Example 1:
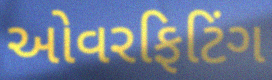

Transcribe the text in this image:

ઓવરફિટિંગ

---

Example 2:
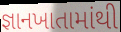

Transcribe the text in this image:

જ્ઞાનખાતામાંથી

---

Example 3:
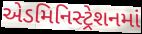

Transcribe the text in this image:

એડમિનિસ્ટ્રેશનમાં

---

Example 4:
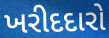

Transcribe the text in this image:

ખરીદદારો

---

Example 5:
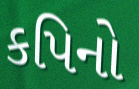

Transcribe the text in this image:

કપિનો